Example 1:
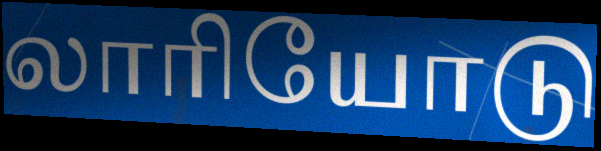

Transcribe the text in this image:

லாரியோடு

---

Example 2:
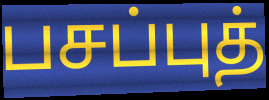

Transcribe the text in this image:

பசப்புத்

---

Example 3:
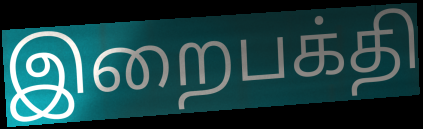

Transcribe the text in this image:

இறைபக்தி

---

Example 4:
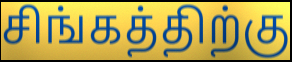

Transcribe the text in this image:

சிங்கத்திற்கு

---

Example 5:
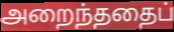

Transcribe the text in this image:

அறைந்ததைப்